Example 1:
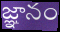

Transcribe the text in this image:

జ్ఞానం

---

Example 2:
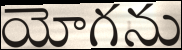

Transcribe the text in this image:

యోగను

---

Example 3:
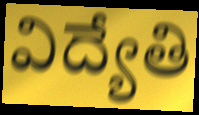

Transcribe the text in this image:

విద్యేతి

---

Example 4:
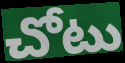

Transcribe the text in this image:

చోటు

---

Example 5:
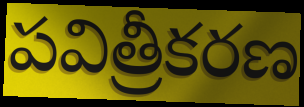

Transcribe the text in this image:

పవిత్రీకరణ